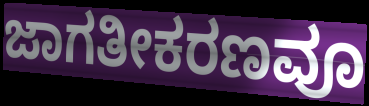
ಜಾಗತೀಕರಣವೂ